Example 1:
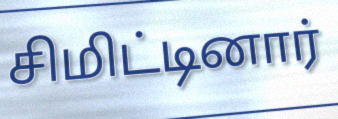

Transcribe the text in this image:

சிமிட்டினார்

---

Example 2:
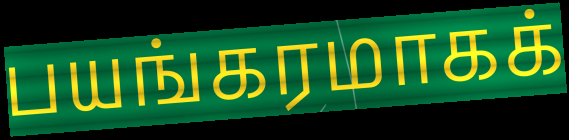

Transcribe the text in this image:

பயங்கரமாகக்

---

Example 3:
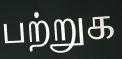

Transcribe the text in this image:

பற்றுக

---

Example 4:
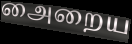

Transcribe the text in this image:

அைறைய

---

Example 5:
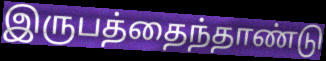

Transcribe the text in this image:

இருபத்தைந்தாண்டு